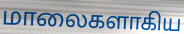
மாலைகளாகிய